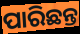
ପାରିଛନ୍ତ